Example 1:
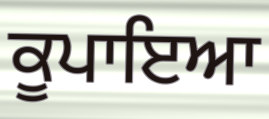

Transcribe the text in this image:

ਕੂਪਾਇਆ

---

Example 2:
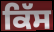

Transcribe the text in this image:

ਕਿੱਸ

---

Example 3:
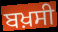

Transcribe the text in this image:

ਬਖ਼ਸੀ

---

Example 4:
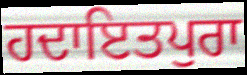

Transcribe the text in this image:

ਹਦਾਇਤਪੁਰਾ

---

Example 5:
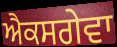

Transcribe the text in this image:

ਐਕਸਗੇਵਾ